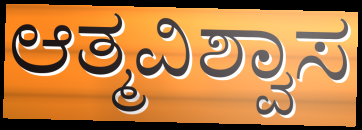
ಆತ್ಮವಿಶ್ವಾಸ